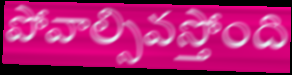
పోవాల్సివస్తోంది